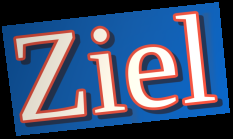
Ziel